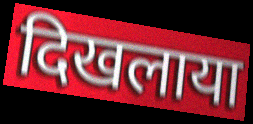
दिखलाया